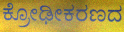
ಕ್ರೋಢೀಕರಣದ